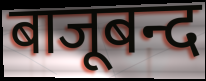
बाजूबन्द